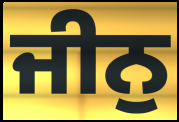
ਜੀਨੁ